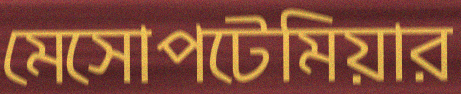
মেসোপটেমিয়ার